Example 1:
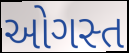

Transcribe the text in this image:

ઓગસ્ત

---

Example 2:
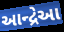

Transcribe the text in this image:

આન્દ્રેઆ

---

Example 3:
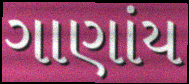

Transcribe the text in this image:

ગાણાંય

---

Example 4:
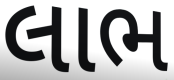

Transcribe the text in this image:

લાભ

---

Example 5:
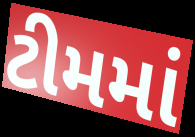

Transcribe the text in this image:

ટીમમાં